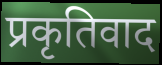
प्रकृतिवाद